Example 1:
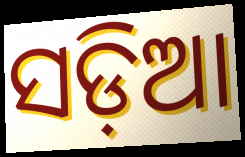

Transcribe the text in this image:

ସଡ଼ିଆ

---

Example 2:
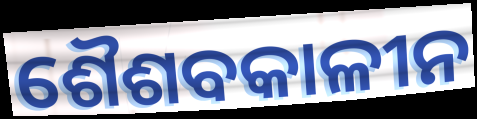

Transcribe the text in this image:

ଶୈଶବକାଳୀନ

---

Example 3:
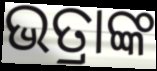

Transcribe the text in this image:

ଭତ୍ରାଙ୍କ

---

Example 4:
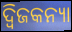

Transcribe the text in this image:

ଦ୍ୱିଜକନ୍ୟା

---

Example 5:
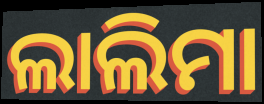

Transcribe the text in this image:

ଲାଲିମା